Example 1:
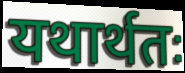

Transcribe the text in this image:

यथार्थतः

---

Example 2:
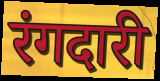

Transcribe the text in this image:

रंगदारी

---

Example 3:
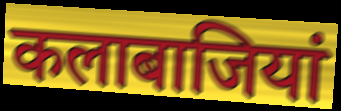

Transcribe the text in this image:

कलाबाजियां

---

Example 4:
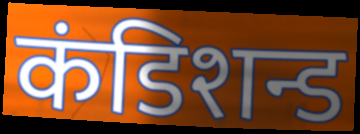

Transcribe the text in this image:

कंडिशन्ड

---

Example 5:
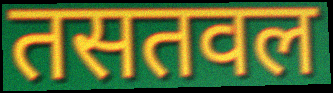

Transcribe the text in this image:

तसतवल